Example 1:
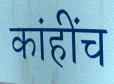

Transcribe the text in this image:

कांहींच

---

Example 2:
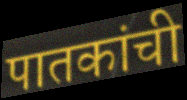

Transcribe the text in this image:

पातकांची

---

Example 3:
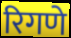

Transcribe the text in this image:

रिगणे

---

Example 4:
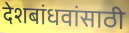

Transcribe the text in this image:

देशबांधवांसाठी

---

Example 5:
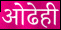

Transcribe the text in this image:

ओढेही